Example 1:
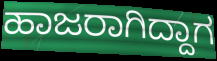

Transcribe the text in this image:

ಹಾಜರಾಗಿದ್ದಾಗ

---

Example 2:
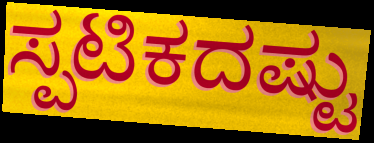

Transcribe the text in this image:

ಸ್ಪಟಿಕದಷ್ಟು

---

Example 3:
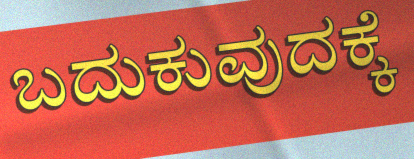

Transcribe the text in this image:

ಬದುಕುವುದಕ್ಕೆ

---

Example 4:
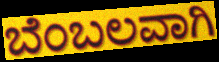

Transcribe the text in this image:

ಬೆಂಬಲವಾಗಿ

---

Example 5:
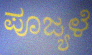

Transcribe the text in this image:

ಪೂಜ್ಯಳೆ